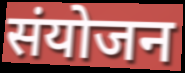
संयोजन